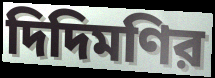
দিদিমণির